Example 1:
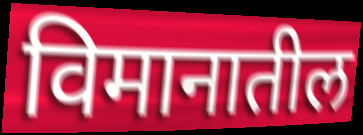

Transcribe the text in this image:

विमानातील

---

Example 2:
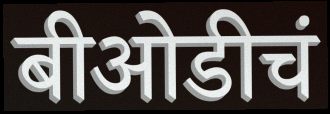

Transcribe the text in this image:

बीओडीचं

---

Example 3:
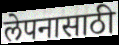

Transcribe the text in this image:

लेपनासाठी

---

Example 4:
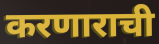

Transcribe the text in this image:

करणाराची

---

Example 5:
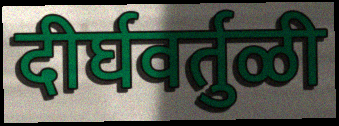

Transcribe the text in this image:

दीर्घवर्तुळी